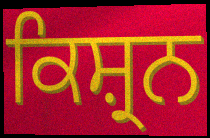
ਕਿਸ਼੍ਰਨ